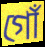
গোঁ